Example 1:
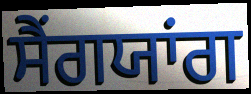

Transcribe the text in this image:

ਸੈਂਗਯਾਂਗ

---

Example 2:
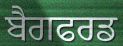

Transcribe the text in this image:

ਬੈਗਫਰਡ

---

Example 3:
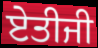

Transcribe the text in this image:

ਏਤੀਜੀ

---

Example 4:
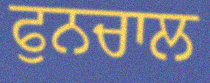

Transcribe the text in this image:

ਫੁਨਚਾਲ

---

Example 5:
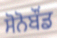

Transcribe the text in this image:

ਸੋਨੋਬੌਂਡ